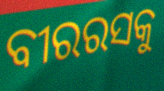
ବୀରରସକୁ